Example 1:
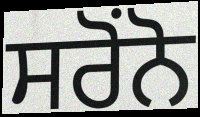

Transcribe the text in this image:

ਸਰੋਂਨੋ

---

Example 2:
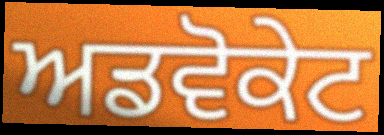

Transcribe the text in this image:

ਅਡਵੋਕੇਟ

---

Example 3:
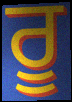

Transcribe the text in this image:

ਰੂ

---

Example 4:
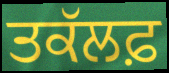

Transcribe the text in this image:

ਤਕੱਲਫ਼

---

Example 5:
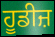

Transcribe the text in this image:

ਹੂਡੀਜ਼